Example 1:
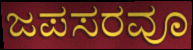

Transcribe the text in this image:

ಜಪಸರವೂ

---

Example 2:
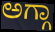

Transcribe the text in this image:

ಅಗ್ಗಾ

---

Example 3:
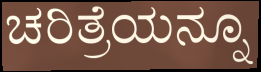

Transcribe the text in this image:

ಚರಿತ್ರೆಯನ್ನೂ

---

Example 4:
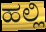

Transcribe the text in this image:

ಹಲ್ಲಿ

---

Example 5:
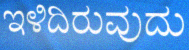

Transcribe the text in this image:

ಇಳಿದಿರುವುದು